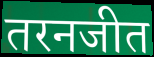
तरनजीत